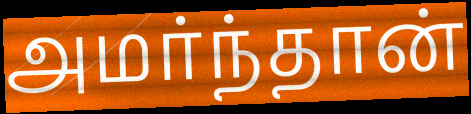
அமர்ந்தான்